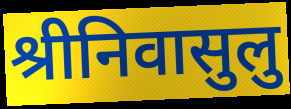
श्रीनिवासुलु